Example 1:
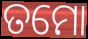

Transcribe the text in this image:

ତମୋ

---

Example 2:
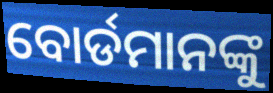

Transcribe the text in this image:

ବୋର୍ଡମାନଙ୍କୁ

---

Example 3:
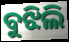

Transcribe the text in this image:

ବୁଝିଲି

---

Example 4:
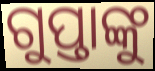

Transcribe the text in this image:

ଗୁପ୍ତାଙ୍କୁ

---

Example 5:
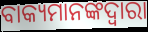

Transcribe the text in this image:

ବାକ୍ୟମାନଙ୍କଦ୍ୱାରା